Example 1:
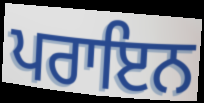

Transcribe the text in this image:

ਪਰਾਇਨ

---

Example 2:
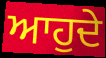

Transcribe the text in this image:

ਆਹੁਦੇ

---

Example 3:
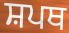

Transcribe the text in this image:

ਸ਼ਪਥ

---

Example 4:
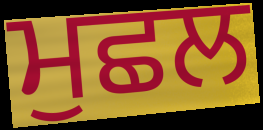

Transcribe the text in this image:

ਮੁਛਲ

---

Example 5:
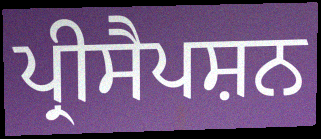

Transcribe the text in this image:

ਪ੍ਰੀਸੈਪਸ਼ਨ